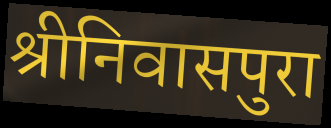
श्रीनिवासपुरा